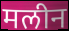
मलीन